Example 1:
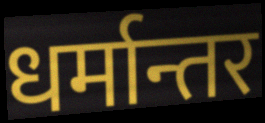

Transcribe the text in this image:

धर्मान्तर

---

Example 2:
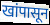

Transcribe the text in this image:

खांपासून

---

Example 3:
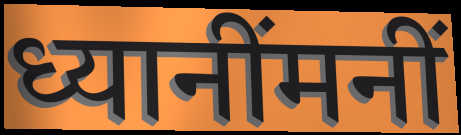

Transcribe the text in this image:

ध्यानींमनीं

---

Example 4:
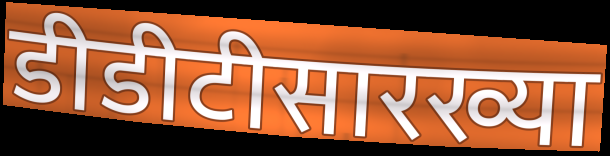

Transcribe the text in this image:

डीडीटीसारख्या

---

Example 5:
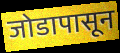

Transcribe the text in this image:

जोडापासून